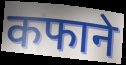
कफाने